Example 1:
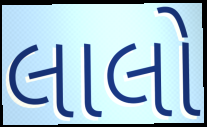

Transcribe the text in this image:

લાલો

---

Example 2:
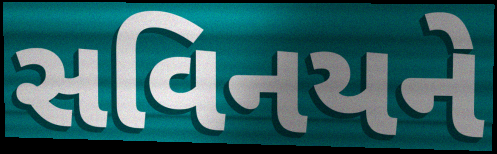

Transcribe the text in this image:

સવિનયને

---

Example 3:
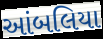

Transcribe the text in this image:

આંબલિયા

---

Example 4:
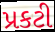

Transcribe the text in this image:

પ્રકટી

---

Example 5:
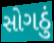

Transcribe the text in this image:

સોગઠું